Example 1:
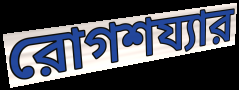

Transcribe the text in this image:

রোগশয্যার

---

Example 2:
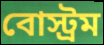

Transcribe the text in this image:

বোস্ট্রম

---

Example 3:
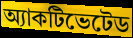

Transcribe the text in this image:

অ্যাকটিভেটেড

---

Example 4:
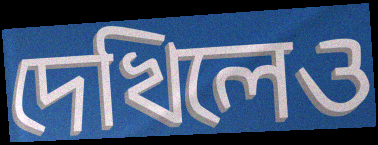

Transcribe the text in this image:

দেখিলেও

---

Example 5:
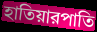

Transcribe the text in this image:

হাতিয়ারপাতি